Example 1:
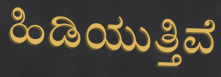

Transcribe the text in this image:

ಹಿಡಿಯುತ್ತಿವೆ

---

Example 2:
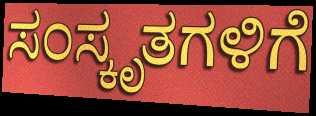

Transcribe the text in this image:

ಸಂಸ್ಕೃತಗಳಿಗೆ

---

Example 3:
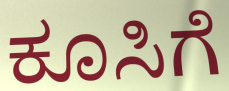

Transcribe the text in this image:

ಕೂಸಿಗೆ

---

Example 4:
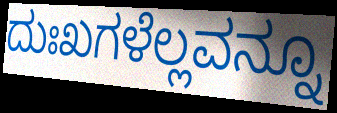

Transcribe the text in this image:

ದುಃಖಗಳೆಲ್ಲವನ್ನೂ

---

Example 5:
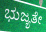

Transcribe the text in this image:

ಭುಜ್ಯತೇ